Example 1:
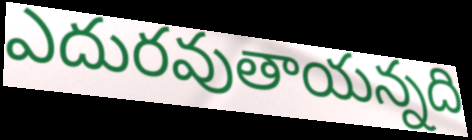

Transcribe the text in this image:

ఎదురవుతాయన్నది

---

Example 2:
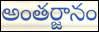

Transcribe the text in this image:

అంతర్జానం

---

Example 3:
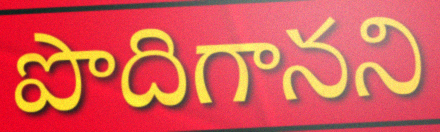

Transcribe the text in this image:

పొదిగానని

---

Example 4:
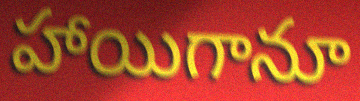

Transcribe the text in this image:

హాయిగానూ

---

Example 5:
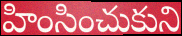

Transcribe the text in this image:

హింసించుకుని